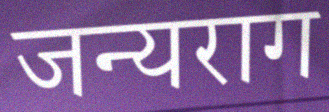
जन्यराग